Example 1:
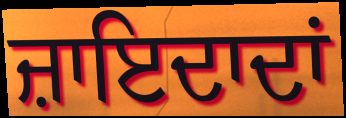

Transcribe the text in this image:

ਜ਼ਾਇਦਾਦਾਂ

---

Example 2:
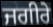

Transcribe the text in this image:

ਜਗੀਰੇ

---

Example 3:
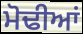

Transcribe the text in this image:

ਮੋਢੀਆਂ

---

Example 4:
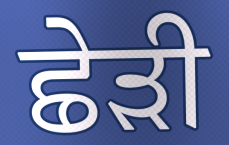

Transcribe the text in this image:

ਛੇੜੀ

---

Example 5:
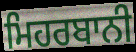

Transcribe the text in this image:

ਮਿਹਰਬਾਨੀ